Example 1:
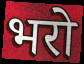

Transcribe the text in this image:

भरो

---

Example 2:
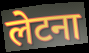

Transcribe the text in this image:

लेटना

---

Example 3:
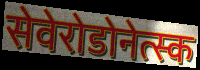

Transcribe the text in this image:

सेवेरोडोनेत्स्क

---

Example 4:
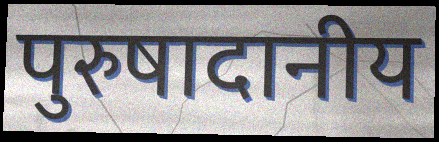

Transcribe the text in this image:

पुरुषादानीय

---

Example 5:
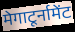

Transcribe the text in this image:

मेगाटूर्नामेंट